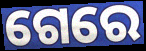
ଗେରେ